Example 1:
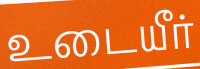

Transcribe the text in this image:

உடையீர்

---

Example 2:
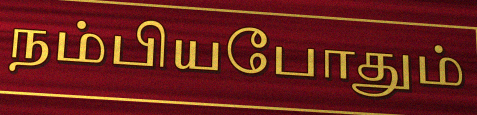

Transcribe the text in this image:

நம்பியபோதும்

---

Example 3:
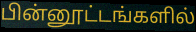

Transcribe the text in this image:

பின்னூட்டங்களில்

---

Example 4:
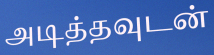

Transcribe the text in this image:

அடித்தவுடன்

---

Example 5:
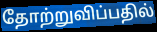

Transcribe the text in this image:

தோற்றுவிப்பதில்